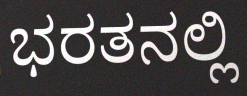
ಭರತನಲ್ಲಿ